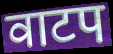
वाटप